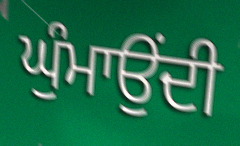
ਘੁੰਮਾਉਂਦੀ